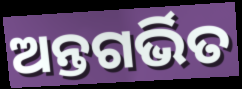
ଅନ୍ତଗର୍ଭିତ